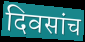
दिवसांच